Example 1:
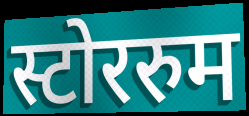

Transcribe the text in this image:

स्टोररुम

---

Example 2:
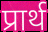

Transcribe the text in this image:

प्रार्थ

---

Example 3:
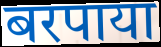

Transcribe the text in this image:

बरपाया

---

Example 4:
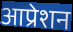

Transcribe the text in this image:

आप्रेशन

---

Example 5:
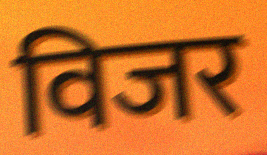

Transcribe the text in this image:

विजर